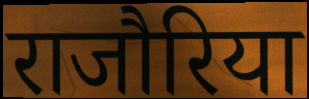
राजौरिया